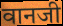
वानजी